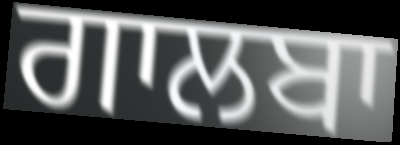
ਗਾਲਬਾ